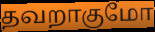
தவறாகுமோ